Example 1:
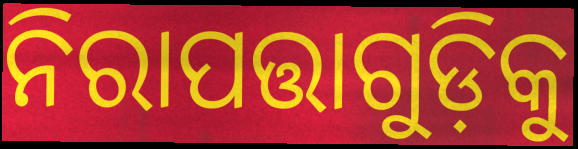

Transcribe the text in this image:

ନିରାପତ୍ତାଗୁଡ଼ିକୁ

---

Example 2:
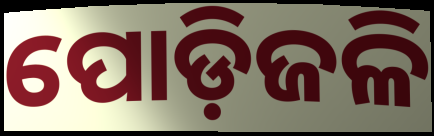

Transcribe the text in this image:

ପୋଡ଼ିଜଳି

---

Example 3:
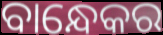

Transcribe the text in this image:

ବାନ୍ଧେକର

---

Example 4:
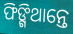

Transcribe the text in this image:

ଫିଙ୍ଗିଥାନ୍ତେ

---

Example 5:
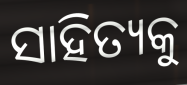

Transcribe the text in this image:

ସାହିତ୍ୟକୁ